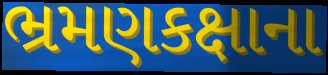
ભ્રમણકક્ષાના